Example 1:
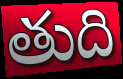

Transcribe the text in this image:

తుది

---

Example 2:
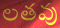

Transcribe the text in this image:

లతవు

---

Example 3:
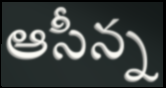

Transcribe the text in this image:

ఆసీన్న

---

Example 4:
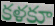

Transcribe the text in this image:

కళకూ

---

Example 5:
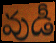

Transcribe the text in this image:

వుడీ